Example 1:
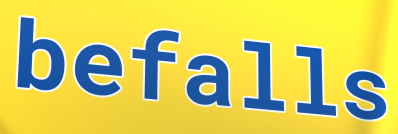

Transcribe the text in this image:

befalls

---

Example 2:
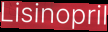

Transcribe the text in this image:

Lisinopril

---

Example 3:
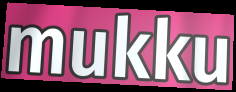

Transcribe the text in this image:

mukku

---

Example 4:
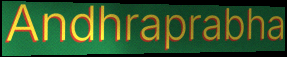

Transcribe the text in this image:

Andhraprabha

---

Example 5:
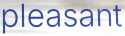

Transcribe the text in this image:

pleasant